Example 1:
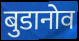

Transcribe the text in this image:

बुडानोव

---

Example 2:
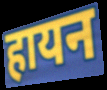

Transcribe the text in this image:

हायन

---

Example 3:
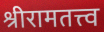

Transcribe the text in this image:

श्रीरामतत्त्व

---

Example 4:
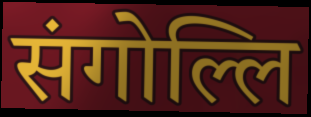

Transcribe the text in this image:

संगोल्लि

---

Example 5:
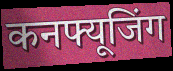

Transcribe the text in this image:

कनफ्यूजिंग